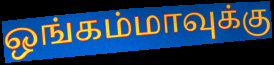
ஒங்கம்மாவுக்கு